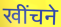
खींचने